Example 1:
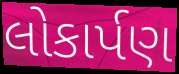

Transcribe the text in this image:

લોકાર્પણ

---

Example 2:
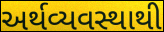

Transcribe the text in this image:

અર્થવ્યવસ્થાથી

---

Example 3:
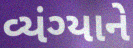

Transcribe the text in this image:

વ્યંગ્યાને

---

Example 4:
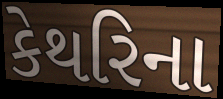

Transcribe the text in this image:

કેથરિના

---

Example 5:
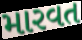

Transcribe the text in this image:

મારવત